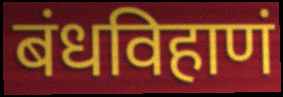
बंधविहाणं